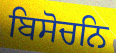
ਬਿਸੋਚਨਿ